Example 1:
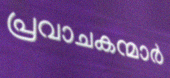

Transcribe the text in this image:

പ്രവാചകന്മാർ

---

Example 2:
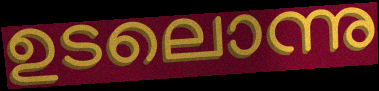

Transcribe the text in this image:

ഉടലൊന്നു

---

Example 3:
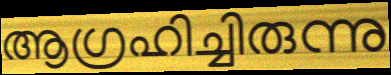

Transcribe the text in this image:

ആഗ്രഹിച്ചിരുന്നു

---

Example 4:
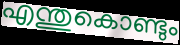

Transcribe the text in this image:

എന്തുകൊണ്ടും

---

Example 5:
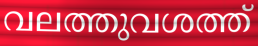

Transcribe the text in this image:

വലത്തുവശത്ത്